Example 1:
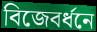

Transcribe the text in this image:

বিজেবর্ধনে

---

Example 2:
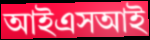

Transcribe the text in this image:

আইএসআই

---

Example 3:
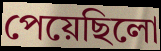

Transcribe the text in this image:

পেয়েছিলো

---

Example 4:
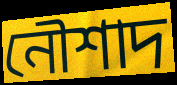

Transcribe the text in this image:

নৌশাদ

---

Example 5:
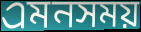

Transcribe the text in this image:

এমনসময়